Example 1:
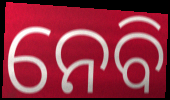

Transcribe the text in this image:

ନେବି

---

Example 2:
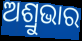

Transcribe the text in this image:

ଅଶ୍ରୁଭାର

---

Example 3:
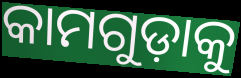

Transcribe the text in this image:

କାମଗୁଡ଼ାକୁ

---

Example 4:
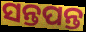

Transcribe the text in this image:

ସନ୍ତପନ୍ତ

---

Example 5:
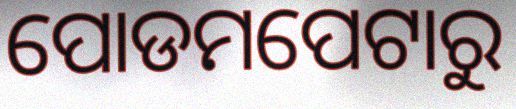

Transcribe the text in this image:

ପୋଡମପେଟାରୁ